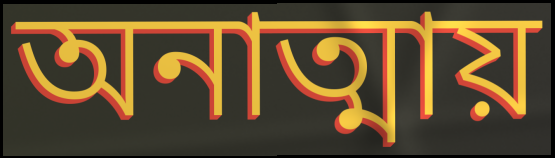
অনাত্মায়